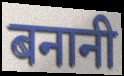
बनानी